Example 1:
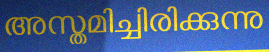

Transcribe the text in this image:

അസ്തമിച്ചിരിക്കുന്നു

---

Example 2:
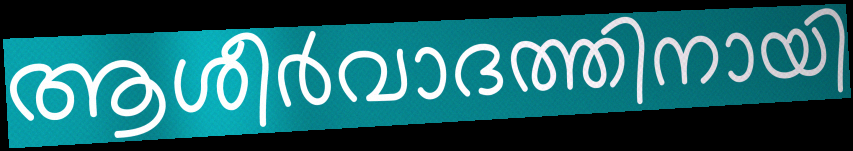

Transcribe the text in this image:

ആശീർവാദത്തിനായി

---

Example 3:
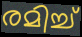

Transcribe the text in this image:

രമിച്ച്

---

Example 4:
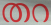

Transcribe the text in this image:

തറ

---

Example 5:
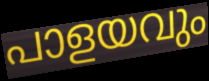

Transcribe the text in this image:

പാളയവും